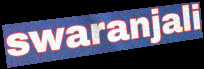
swaranjali